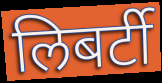
लिबर्टी